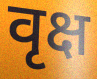
वृक्ष